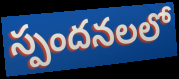
స్పందనలలో